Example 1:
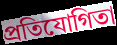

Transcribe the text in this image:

প্রতিযোগিতা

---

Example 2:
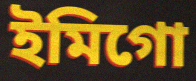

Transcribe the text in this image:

ইমিগো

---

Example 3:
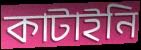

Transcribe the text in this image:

কাটাইনি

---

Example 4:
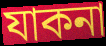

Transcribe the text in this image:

যাকনা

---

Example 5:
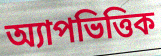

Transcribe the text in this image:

অ্যাপভিত্তিক